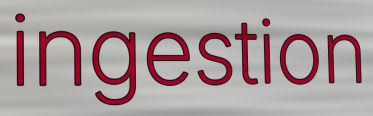
ingestion